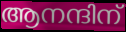
ആനന്ദിന്